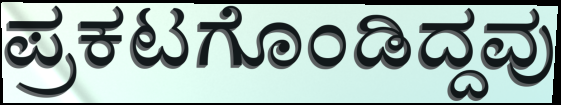
ಪ್ರಕಟಗೊಂಡಿದ್ದವು